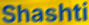
Shashti